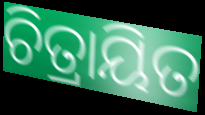
ଚିତ୍ରାୟିତ